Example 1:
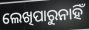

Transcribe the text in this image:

ଲେଖିପାରୁନାହିଁ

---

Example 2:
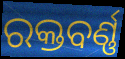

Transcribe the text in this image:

ରକ୍ତବର୍ଣ୍ଣ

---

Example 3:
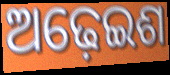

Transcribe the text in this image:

ଅଢ଼େଇଶ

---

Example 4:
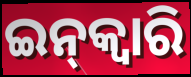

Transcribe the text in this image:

ଇନ୍‌କ୍ଵାରି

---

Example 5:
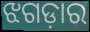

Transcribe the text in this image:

ଝଗଡ଼ାର